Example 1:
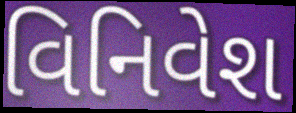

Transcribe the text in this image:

વિનિવેશ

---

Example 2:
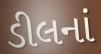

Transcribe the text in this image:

ડીલનાં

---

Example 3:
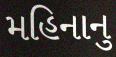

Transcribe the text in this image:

મહિનાનુ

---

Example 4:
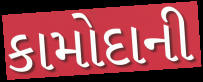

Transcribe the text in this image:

કામોદાની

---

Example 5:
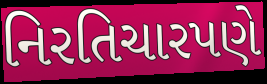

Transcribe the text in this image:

નિરતિચારપણે